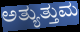
ಅತ್ಯುತ್ತುಮ